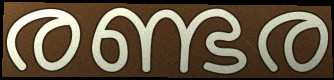
രണ്ടര